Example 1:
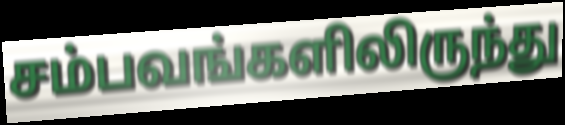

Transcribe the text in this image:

சம்பவங்களிலிருந்து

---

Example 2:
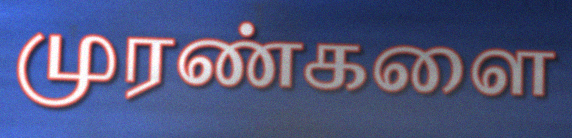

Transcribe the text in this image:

முரண்களை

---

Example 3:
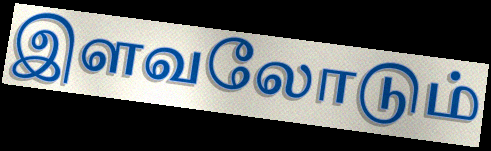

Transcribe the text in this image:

இளவலோடும்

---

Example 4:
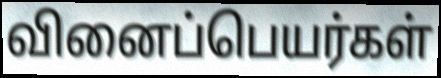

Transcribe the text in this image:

வினைப்பெயர்கள்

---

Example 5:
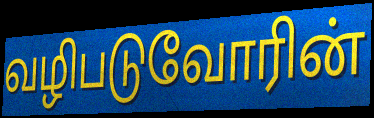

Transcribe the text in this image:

வழிபடுவோரின்